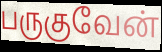
பருகுவேன்